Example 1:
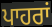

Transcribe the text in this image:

ਪਾਹਰਾਂ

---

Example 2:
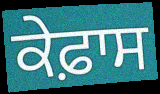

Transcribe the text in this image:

ਕੇਫ਼ਾਸ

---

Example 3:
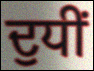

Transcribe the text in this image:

ਦੁਧੀਂ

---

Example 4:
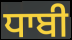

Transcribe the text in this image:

ਧਾਬੀ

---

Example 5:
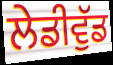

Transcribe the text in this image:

ਲੇਡੀਵੁੱਡ